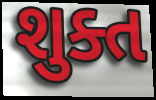
શુક્ત